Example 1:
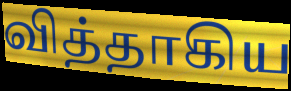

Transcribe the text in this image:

வித்தாகிய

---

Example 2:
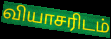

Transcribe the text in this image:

வியாசரிடம்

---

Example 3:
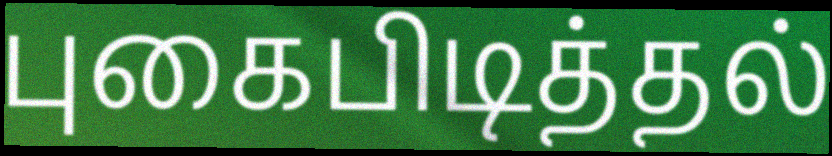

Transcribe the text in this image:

புகைபிடித்தல்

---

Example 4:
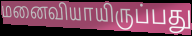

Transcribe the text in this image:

மனைவியாயிருப்பது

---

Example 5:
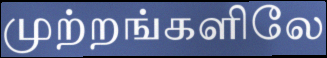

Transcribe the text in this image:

முற்றங்களிலே